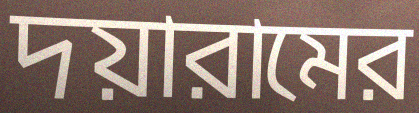
দয়ারামের